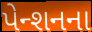
પેન્શનના